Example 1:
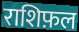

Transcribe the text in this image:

राशिफ़ल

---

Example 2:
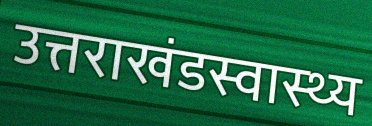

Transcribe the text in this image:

उत्तराखंडस्वास्थ्य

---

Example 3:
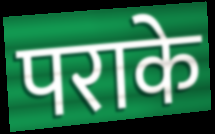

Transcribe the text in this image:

पराके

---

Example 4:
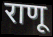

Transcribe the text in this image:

राणू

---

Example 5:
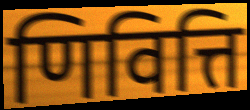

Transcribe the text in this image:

णिवित्ति